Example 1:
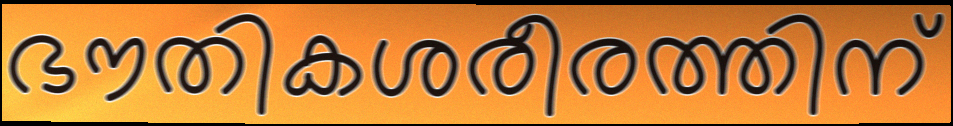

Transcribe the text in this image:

ഭൗതികശരീരത്തിന്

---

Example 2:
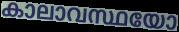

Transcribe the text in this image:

കാലാവസ്ഥയോ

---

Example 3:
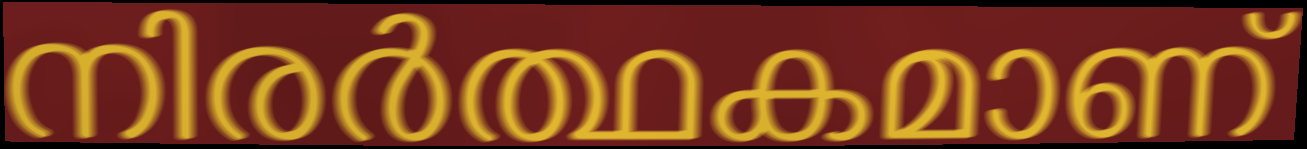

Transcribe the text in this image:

നിരർത്ഥകമാണ്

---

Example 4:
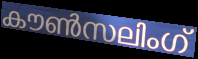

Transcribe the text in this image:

കൗൺസലിംഗ്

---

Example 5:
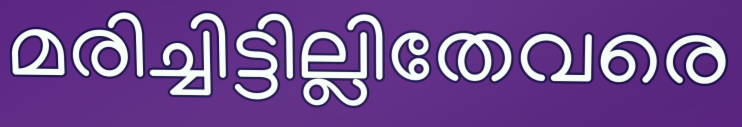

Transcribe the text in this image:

മരിച്ചിട്ടില്ലിതേവരെ